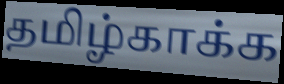
தமிழ்காக்க